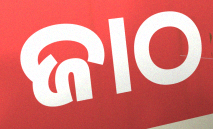
ଜାଠ